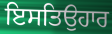
ਇਸਤਿਉਹਾਰ